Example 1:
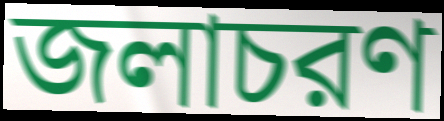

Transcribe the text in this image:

জলাচরণ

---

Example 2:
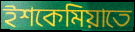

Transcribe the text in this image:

ইশকেমিয়াতে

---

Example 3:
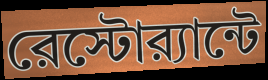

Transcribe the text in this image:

রেস্টোর‍্যান্টে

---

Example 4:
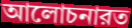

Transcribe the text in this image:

আলোচনারত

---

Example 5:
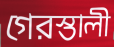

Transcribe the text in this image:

গেরস্তালী